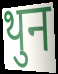
थुन